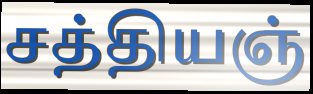
சத்தியஞ்